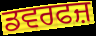
ਡਵਰਫਜ਼